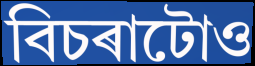
বিচৰাটোও